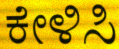
ಕೇಳಿಸಿ